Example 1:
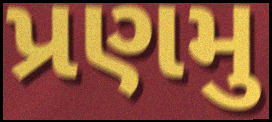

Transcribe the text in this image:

પ્રણમુ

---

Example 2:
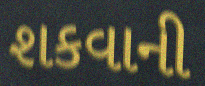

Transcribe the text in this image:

શકવાની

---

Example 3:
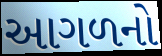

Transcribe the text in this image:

આગળનો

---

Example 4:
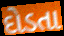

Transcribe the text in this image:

દોડતા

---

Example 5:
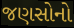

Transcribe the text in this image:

જણસોનો